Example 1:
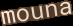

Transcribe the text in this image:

mouna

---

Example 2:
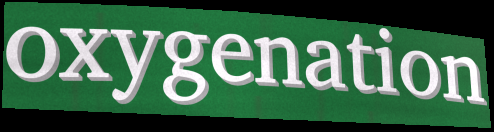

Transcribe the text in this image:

oxygenation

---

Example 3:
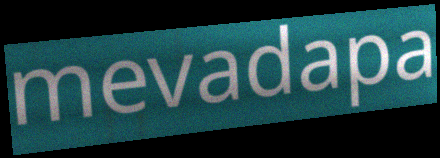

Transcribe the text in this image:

mevadapa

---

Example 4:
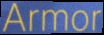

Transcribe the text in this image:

Armor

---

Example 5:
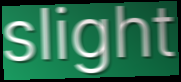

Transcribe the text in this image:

slight